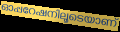
ഓപ്പറേഷനിലൂടെയാണ്